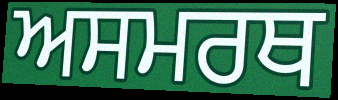
ਅਸਮਰਥ